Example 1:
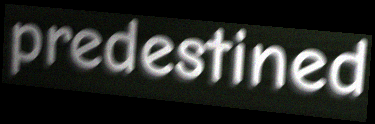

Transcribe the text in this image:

predestined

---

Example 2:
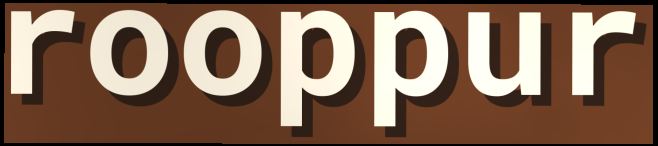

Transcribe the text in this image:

rooppur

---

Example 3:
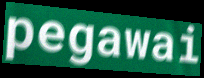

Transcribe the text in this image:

pegawai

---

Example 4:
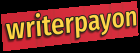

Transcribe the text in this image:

writerpayon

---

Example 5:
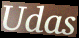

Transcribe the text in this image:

Udas